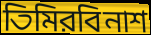
তিমিরবিনাশ